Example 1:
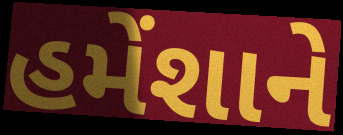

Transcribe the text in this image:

હમેંશાને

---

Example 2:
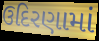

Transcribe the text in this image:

ઉદિરણામાં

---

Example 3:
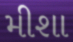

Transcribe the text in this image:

મીશા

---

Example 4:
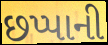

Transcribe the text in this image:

છપ્પાની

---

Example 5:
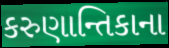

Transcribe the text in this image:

કરુણાન્તિકાના